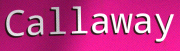
Callaway